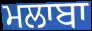
ਮਲਾਬਾ